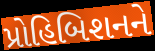
પ્રોહિબિશનને